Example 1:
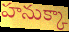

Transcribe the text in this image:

హనుక్కా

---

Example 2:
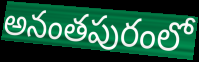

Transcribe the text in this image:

అనంతపురంలో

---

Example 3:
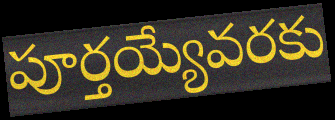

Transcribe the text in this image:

పూర్తయ్యేవరకు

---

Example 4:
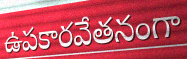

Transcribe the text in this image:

ఉపకారవేతనంగా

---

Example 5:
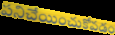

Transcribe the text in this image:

పనిచేయించుకోవడం